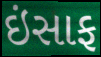
ઇંસાફ